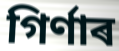
গিৰ্ণাৰ